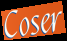
Coser